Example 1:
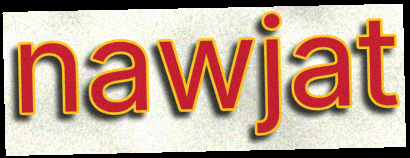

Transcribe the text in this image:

nawjat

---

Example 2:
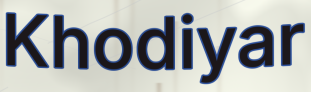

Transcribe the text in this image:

Khodiyar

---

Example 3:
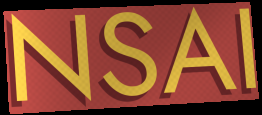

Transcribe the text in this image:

NSAI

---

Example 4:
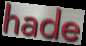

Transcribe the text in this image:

hade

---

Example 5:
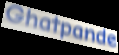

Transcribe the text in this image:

Ghatpande